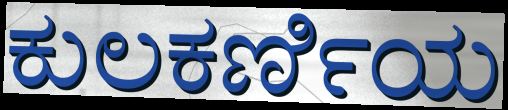
ಕುಲಕರ್ಣಿಯ